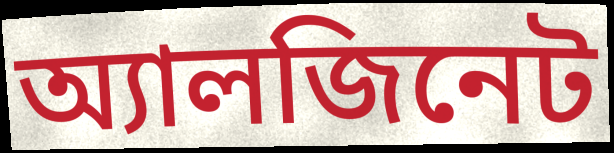
অ্যালজিনেট